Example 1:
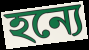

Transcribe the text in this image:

হন্যে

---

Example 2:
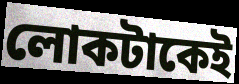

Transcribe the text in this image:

লোকটাকেই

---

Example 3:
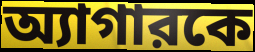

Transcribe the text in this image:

অ্যাগারকে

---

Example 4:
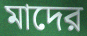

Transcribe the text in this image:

মাদের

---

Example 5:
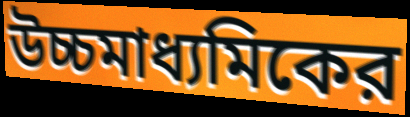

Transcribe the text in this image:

উচ্চমাধ্যমিকের